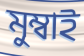
মুম্বাই